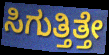
ಸಿಗುತ್ತಿತ್ತೇ